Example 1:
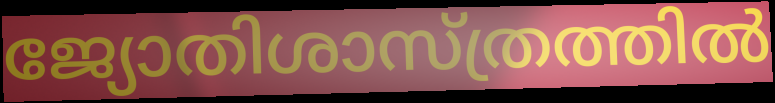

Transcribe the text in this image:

ജ്യോതിശാസ്ത്രത്തിൽ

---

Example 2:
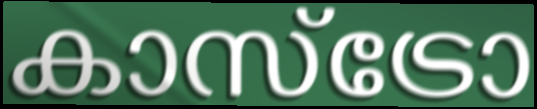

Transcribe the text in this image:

കാസ്ട്രോ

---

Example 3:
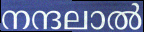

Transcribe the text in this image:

നന്ദലാൽ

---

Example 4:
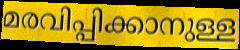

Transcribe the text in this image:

മരവിപ്പിക്കാനുള്ള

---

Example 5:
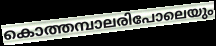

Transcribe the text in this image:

കൊത്തമ്പാലരിപോലെയും